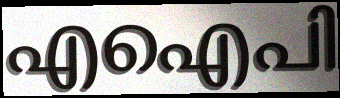
എഐപി